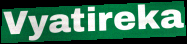
Vyatireka